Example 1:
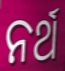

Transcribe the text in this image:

ନର୍ଥ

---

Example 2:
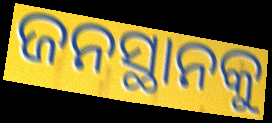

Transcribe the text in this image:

ଜନସ୍ଥାନକୁ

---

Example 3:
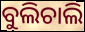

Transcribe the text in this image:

ବୁଲିଚାଲି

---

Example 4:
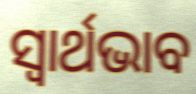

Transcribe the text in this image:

ସ୍ଵାର୍ଥଭାବ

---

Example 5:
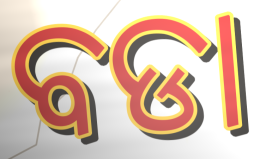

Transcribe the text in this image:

ବଡା